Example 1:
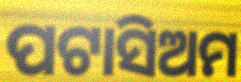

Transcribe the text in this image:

ପଟାସିଅମ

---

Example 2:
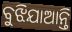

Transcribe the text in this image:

ବୁଝିଯାଆନ୍ତି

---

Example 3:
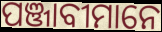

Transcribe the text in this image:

ପଞ୍ଜାବୀମାନେ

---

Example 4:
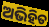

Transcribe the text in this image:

ଅଭିହିତ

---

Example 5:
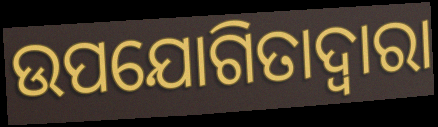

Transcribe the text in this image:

ଉପଯୋଗିତାଦ୍ୱାରା